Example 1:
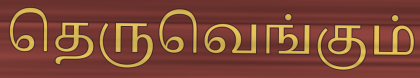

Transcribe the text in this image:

தெருவெங்கும்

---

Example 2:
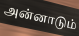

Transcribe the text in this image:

அன்னாடும்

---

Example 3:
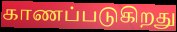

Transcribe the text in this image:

காணப்படுகிறது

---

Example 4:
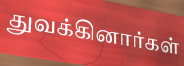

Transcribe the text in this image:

துவக்கினார்கள்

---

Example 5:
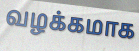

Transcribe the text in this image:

வழக்கமாக